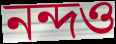
নন্দও